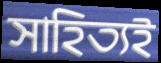
সাহিত্যই